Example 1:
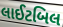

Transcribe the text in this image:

લાઈટબિલ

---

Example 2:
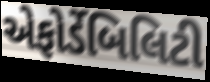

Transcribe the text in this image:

એફોર્ડેબિલિટી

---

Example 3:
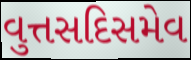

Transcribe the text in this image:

વુત્તસદિસમેવ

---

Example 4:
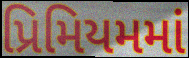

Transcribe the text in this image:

પ્રિમિયમમાં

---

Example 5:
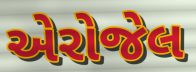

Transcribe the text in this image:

એરોજેલ